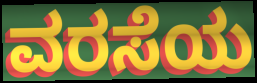
ವರಸೆಯ